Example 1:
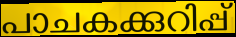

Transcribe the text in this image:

പാചകക്കുറിപ്പ്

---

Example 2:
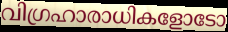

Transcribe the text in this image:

വിഗ്രഹാരാധികളോടോ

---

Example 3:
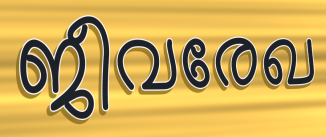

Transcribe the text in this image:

ജീവരേഖ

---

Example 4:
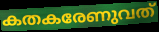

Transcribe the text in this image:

കതകരേണുവത്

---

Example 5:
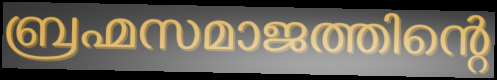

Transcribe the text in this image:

ബ്രഹ്മസമാജത്തിന്റെ